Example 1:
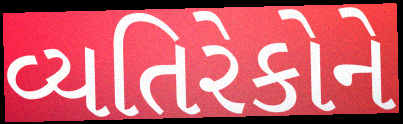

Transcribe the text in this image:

વ્યતિરેકોને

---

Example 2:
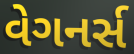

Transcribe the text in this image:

વેગનર્સ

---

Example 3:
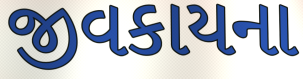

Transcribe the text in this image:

જીવકાયના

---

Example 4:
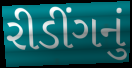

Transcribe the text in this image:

રીડીંગનું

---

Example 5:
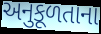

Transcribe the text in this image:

અનુકૂળતાના